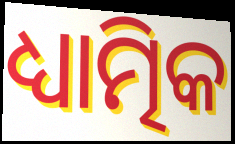
ଧ୍ୟାତ୍ମିକ